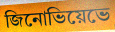
জিনোভিয়েভে